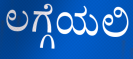
ಲಗ್ಗೆಯಲಿ